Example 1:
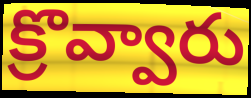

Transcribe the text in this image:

క్రొవ్వారు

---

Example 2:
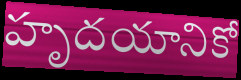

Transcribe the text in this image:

హృదయానికో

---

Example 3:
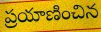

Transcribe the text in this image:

ప్రయాణించిన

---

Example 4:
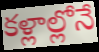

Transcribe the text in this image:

కళ్లాల్లోనే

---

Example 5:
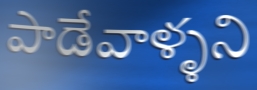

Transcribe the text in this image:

పాడేవాళ్ళని